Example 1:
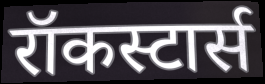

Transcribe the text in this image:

रॉकस्टार्स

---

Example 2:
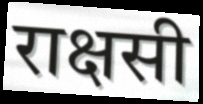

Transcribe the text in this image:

राक्षसी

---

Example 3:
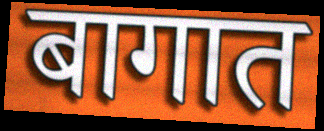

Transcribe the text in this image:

बागात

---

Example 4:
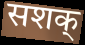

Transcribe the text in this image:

सशक्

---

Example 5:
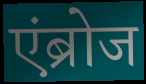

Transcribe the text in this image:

एंब्रोज